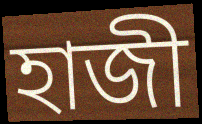
হাজী